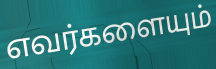
எவர்களையும்